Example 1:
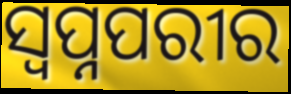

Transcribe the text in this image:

ସ୍ୱପ୍ନପରୀର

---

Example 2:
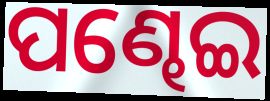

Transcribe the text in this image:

ପଣ୍ଢେଇ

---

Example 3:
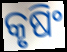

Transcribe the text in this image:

କୃଷିଂ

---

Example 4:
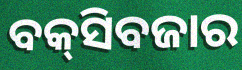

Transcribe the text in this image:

ବକ୍‌ସିବଜାର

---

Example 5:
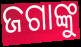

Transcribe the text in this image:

ଜଗାଙ୍କୁ